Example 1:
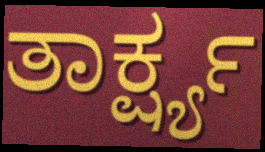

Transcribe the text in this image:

ತಾರ್ಕ್ಷ್ಯ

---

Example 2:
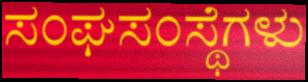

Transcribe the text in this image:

ಸಂಘಸಂಸ್ಥೆಗಳು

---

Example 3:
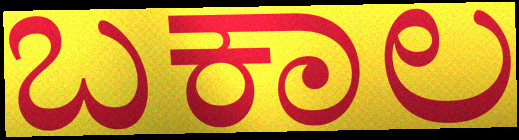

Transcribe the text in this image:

ಬಕಾಲ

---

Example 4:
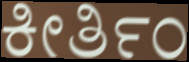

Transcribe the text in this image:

ಕೀರ್ತಿಂ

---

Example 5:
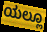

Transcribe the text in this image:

ಯಲ್ಲೂ